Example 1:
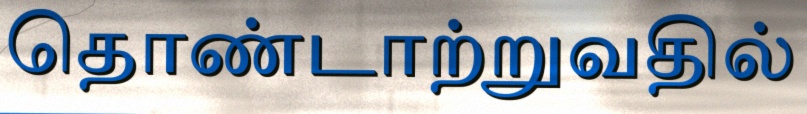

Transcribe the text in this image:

தொண்டாற்றுவதில்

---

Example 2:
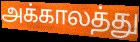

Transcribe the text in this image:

அக்காலத்து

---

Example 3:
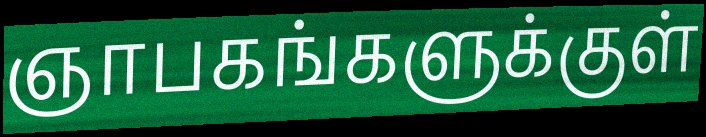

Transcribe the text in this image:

ஞாபகங்களுக்குள்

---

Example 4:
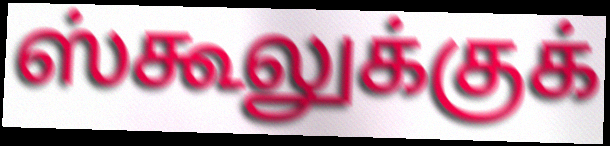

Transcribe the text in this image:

ஸ்கூலுக்குக்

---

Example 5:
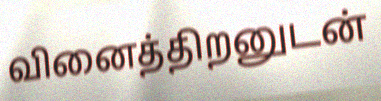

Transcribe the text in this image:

வினைத்திறனுடன்